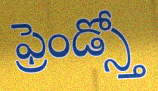
ఫ్రెండ్స్తో